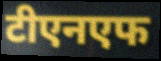
टीएनएफ